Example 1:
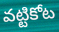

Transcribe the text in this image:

వట్టికోట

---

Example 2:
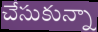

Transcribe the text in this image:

చేసుకున్నా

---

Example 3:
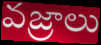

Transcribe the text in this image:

వజ్రాలు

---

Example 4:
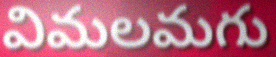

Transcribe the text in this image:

విమలమగు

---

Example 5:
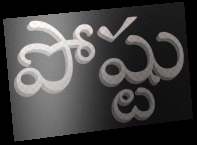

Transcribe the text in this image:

పోష్టు